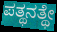
ಪತ್ಥನತ್ಥೇ